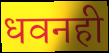
धवनही